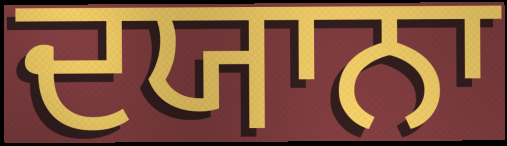
ਦਯਾਨਾ